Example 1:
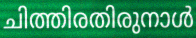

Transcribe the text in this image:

ചിത്തിരതിരുനാൾ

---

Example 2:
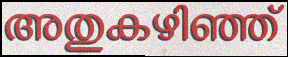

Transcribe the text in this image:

അതുകഴിഞ്ഞ്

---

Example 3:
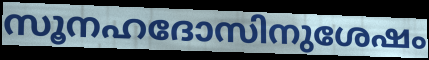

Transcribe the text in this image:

സൂനഹദോസിനുശേഷം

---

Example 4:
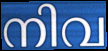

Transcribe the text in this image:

നിവ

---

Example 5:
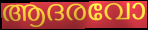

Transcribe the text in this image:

ആദരവോ